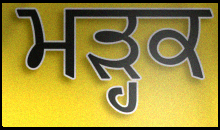
ਮੜ੍ਹਕ